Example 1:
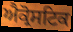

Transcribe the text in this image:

ਐਕ੍ਰੋਸਟਿਕ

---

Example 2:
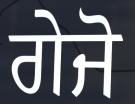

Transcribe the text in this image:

ਗੇਜੋ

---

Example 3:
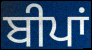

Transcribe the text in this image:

ਬੀਪਾਂ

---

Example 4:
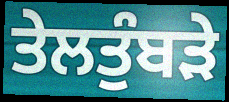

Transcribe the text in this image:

ਤੇਲਤੁੰਬੜੇ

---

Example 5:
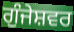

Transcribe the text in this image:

ਗੁੰਜੇਸ਼ਵਰ